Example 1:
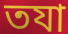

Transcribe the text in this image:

তযা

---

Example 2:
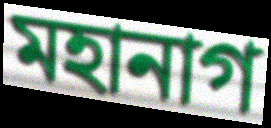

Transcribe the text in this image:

মহানাগ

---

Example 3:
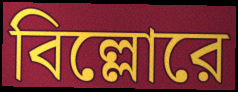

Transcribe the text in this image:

বিল্লোরে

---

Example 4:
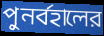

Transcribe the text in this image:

পুনর্বহালের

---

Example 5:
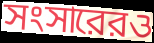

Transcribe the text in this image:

সংসারেরও